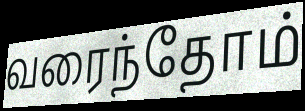
வரைந்தோம்